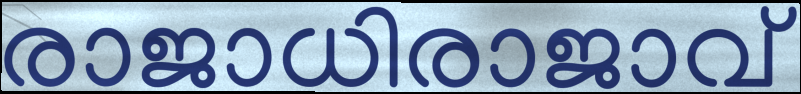
രാജാധിരാജാവ്